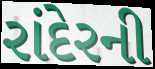
રાંદેરની